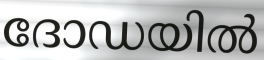
ദോഡയിൽ